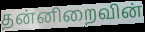
தன்னிறைவின்